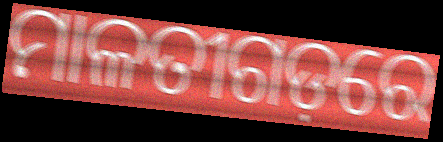
ମାଳତୀଗଡ଼ରେ